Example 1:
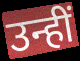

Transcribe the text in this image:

उन्हीं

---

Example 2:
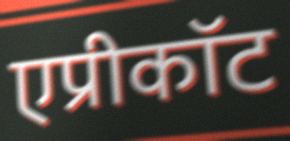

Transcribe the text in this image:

एप्रीकॉट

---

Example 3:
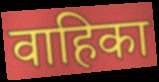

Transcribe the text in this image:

वाहिका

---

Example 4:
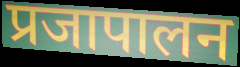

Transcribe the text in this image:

प्रजापालन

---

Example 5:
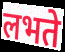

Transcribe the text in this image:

लभते